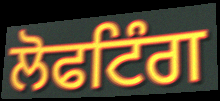
ਲੋਫਟਿੰਗ